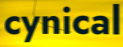
cynical